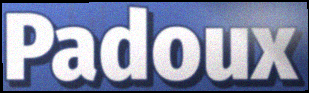
Padoux